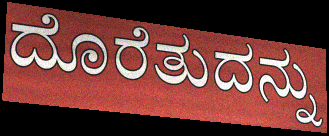
ದೊರೆತುದನ್ನು